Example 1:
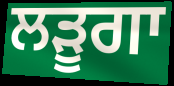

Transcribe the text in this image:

ਲੜੂਗਾ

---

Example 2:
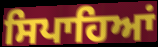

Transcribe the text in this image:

ਸਿਪਾਹਿਆਂ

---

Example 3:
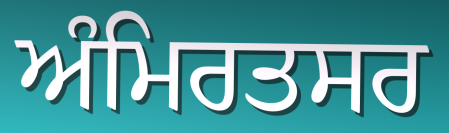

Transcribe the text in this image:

ਅੰਮਿਰਤਸਰ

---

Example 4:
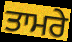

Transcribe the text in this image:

ਤਾਮਰੇ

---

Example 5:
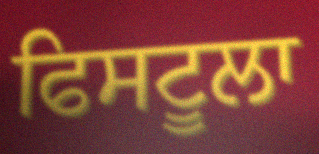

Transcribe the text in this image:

ਫਿਸਟੂਲਾ